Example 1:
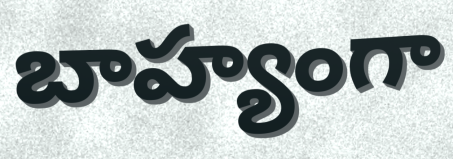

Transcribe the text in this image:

బాహ్యంగా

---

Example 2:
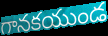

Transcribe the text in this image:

గానకయుండ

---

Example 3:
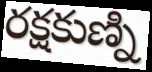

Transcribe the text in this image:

రక్షకుణ్ని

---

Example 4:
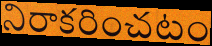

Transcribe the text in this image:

నిరాకరించటం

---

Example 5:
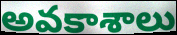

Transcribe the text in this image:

అవకాశాలు